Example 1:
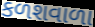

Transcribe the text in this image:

કળશવાળા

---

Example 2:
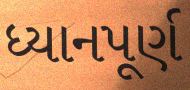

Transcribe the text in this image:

ધ્યાનપૂર્ણ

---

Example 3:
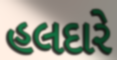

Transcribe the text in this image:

હલદારે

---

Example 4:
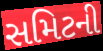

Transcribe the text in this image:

સમિટની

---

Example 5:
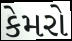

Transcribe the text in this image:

કેમરો